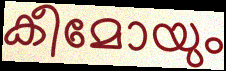
കീമോയും